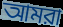
আমরা